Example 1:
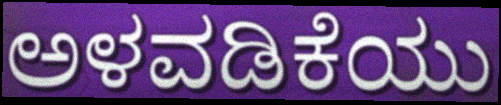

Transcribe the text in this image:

ಅಳವಡಿಕೆಯು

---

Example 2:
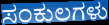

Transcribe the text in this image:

ಸಂಕುಲಗಳು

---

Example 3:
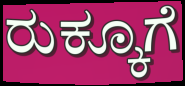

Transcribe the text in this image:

ರುಕ್ಕೂಗೆ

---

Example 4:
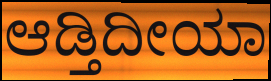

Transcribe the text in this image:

ಆಡ್ತಿದೀಯಾ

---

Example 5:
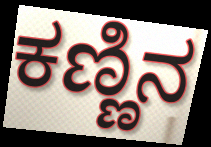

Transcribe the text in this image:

ಕಣ್ಣಿನ